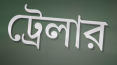
ট্রেলার